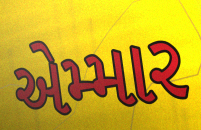
એમ્માર